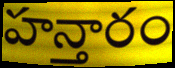
హన్తారం